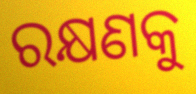
ରକ୍ଷଣକୁ